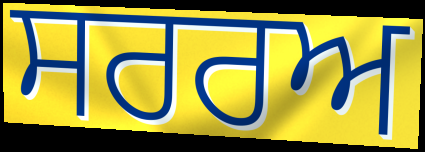
ਸਰਰਅ